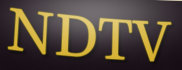
NDTV